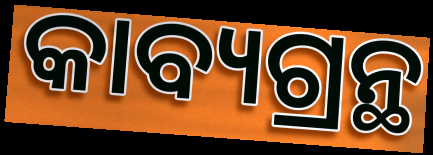
କାବ୍ୟଗ୍ରନ୍ଥ